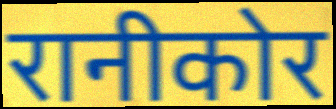
रानीकोर